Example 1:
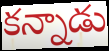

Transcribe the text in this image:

కన్నాడు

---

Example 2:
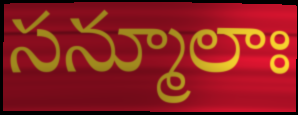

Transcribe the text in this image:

సన్మూలాః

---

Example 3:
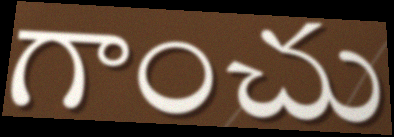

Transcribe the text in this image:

గాంచు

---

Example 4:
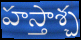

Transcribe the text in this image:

హస్తాశ్చ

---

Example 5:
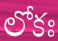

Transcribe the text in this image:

లోకః